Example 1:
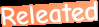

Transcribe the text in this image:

Releated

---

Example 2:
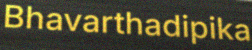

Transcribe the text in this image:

Bhavarthadipika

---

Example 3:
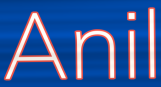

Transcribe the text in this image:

Anil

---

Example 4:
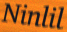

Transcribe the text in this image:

Ninlil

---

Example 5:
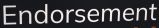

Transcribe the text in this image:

Endorsement